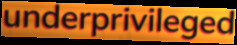
underprivileged